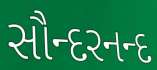
સૌન્દરનન્દ